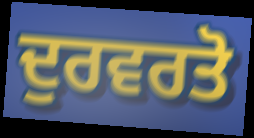
ਦੁਰਵਰਤੋ